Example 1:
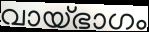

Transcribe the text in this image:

വായ്ഭാഗം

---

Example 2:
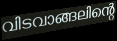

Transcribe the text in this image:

വിടവാങ്ങലിന്റെ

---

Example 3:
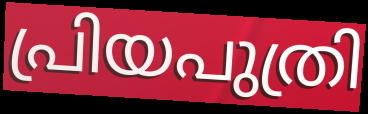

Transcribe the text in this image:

പ്രിയപുത്രി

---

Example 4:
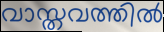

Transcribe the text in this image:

വാസ്തവത്തിൽ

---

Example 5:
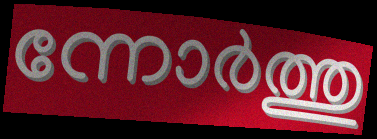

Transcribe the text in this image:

ന്നോർത്തു